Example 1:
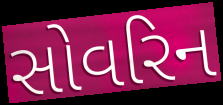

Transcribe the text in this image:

સોવરિન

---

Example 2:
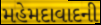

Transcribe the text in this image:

મહેમદાવાદની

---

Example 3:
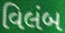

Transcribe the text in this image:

વિલંબ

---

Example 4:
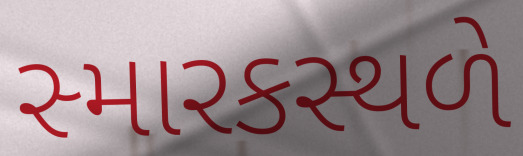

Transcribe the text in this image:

સ્મારકસ્થળે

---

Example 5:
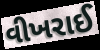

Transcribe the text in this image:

વીખરાઈ